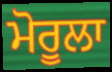
ਮੋਰੂਲਾ